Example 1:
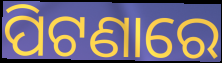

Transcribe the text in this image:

ପିଟଣାରେ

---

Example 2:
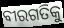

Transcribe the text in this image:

ବୀରଗତିକୁ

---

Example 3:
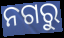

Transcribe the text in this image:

ନଗରୁ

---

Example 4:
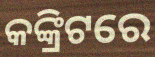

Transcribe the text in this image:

କଙ୍କ୍ରିଟରେ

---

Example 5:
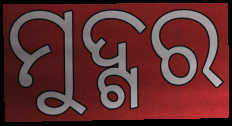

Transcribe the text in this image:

ମୁଦ୍ଗର